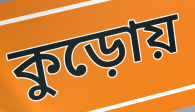
কুড়োয়